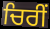
ਚਿਰੀਂ